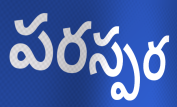
పరస్పర